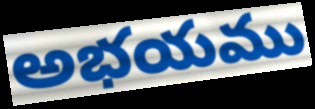
అభయము